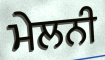
ਮੇਲਨੀ